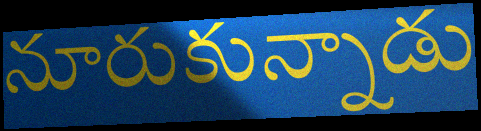
నూరుకున్నాడు